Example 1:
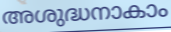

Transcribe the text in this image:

അശുദ്ധനാകാം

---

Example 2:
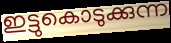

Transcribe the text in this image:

ഇട്ടുകൊടുക്കുന്ന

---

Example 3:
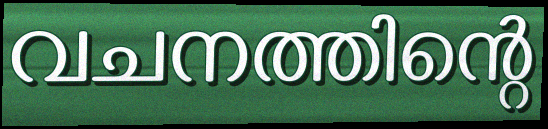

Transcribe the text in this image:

വചനത്തിന്റെ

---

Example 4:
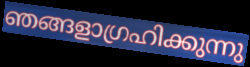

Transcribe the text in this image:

ഞങ്ങളാഗ്രഹിക്കുന്നു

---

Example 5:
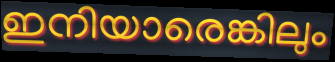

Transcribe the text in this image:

ഇനിയാരെങ്കിലും